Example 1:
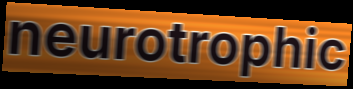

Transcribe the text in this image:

neurotrophic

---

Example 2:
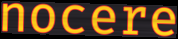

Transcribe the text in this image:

nocere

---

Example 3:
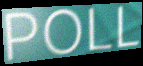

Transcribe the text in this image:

POLL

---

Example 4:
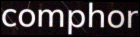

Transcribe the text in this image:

comphor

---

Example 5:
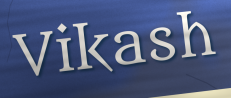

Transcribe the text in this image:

Vikash